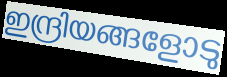
ഇന്ദ്രിയങ്ങളോടു